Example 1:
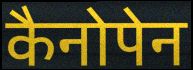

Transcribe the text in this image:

कैनोपेन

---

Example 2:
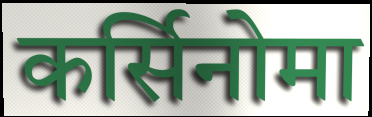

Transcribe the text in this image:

कर्सिनोमा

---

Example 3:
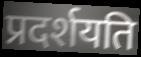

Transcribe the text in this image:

प्रदर्शयति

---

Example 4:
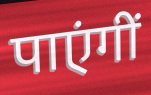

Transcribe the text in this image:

पाएंगीं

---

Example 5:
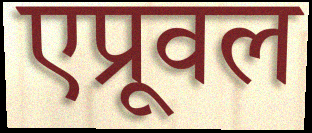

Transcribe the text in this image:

एप्रूवल